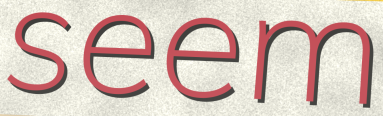
seem